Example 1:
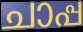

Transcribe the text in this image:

ചാപ്പ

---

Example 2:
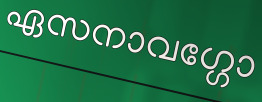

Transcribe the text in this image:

ഏസനാവഗ്ഗോ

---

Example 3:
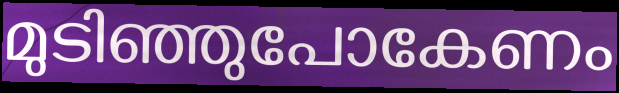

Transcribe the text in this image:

മുടിഞ്ഞുപോകേണം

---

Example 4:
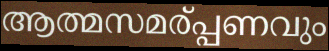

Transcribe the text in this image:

ആത്മസമര്പ്പണവും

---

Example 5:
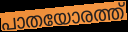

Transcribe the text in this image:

പാതയോരത്ത്